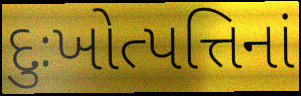
દુઃખોત્પત્તિનાં